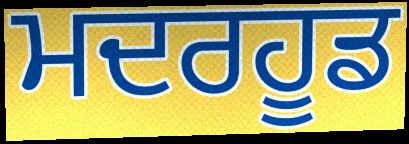
ਮਦਰਹੂਡ